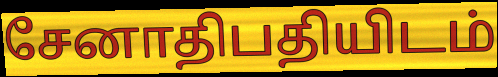
சேனாதிபதியிடம்